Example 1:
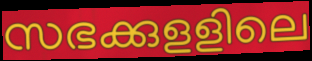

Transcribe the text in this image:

സഭക്കുളളിലെ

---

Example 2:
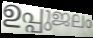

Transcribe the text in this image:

ഉപ്പുജലം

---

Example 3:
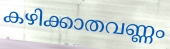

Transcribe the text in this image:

കഴിക്കാതവണ്ണം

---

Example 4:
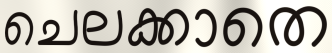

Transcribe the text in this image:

ചെലക്കാതെ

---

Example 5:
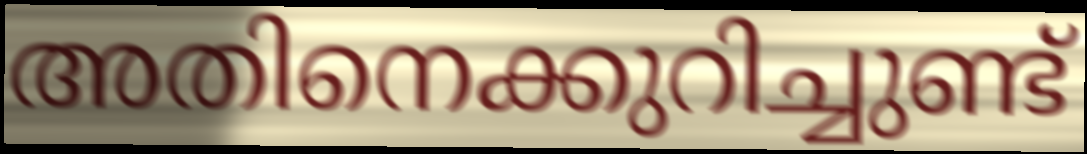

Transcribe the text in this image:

അതിനെക്കുറിച്ചുണ്ട്